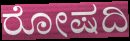
ರೋಷದಿ